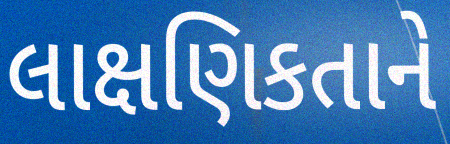
લાક્ષણિકતાને